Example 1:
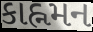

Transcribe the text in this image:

કાહ્નમન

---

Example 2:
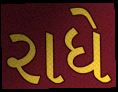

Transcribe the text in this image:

રાધે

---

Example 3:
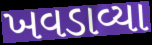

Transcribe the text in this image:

ખવડાવ્યા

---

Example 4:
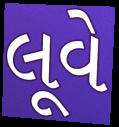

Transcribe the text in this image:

લૂવે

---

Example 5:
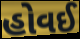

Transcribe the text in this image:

હોવઈ